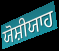
ਯੋਸ਼ੀਯਾਹ